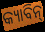
କ୍ୟାବିନ୍